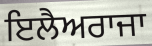
ਇਲੈਅਰਾਜਾ